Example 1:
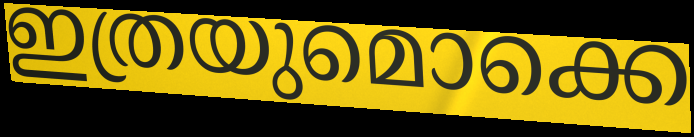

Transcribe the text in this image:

ഇത്രയുമൊക്കെ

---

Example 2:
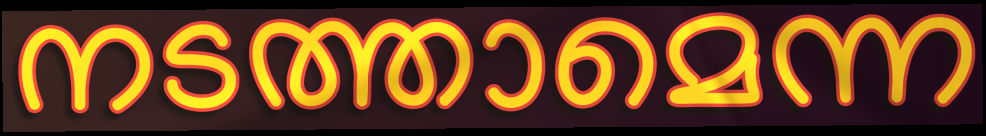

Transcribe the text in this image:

നടത്താമെന്ന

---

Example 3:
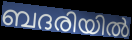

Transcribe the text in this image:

ബദരിയിൽ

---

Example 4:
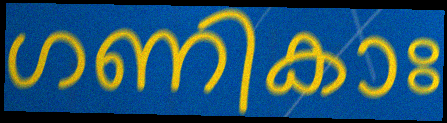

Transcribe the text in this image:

ഗണികാഃ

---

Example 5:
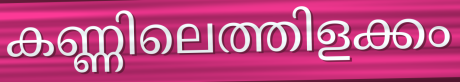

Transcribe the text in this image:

കണ്ണിലെത്തിളക്കം